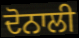
ਦੋਨਾਲੀ